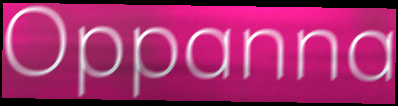
Oppanna